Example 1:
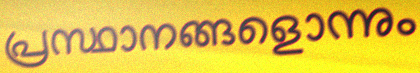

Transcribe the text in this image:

പ്രസ്ഥാനങ്ങളൊന്നും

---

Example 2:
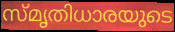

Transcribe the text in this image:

സ്മൃതിധാരയുടെ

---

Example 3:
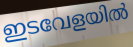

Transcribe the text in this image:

ഇടവേളയിൽ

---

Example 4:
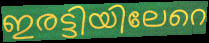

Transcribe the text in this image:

ഇരട്ടിയിലേറെ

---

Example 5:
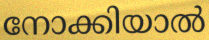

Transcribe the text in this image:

നോക്കിയാൽ